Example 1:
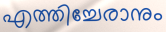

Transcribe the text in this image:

എത്തിച്ചേരാനും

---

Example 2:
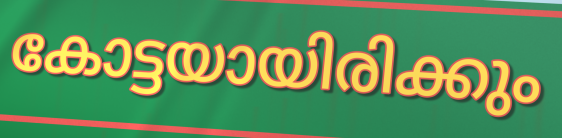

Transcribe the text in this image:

കോട്ടയായിരിക്കും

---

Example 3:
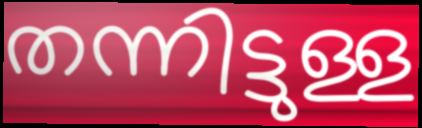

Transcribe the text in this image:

തന്നിട്ടുള്ള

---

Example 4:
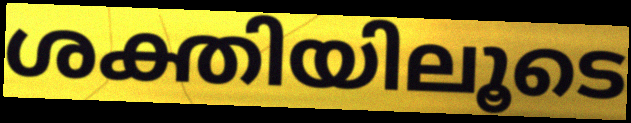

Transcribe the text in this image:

ശക്തിയിലൂടെ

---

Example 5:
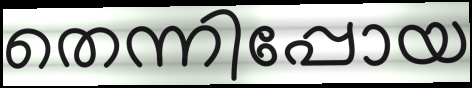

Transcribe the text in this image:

തെന്നിപ്പോയ